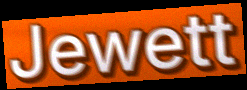
Jewett